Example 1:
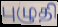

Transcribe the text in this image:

புழுதி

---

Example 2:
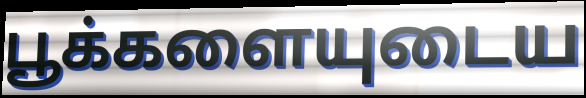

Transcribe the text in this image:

பூக்களையுடைய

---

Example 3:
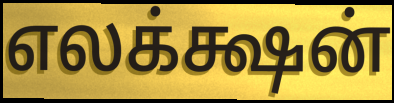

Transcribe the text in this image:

எலக்க்ஷன்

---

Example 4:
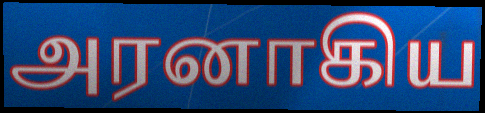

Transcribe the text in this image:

அரனாகிய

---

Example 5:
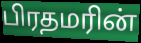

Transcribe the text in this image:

பிரதமரின்